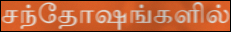
சந்தோஷங்களில்